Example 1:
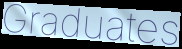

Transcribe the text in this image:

Graduates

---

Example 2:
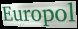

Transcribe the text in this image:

Europol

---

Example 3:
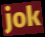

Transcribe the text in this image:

jok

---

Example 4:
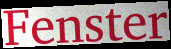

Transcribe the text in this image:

Fenster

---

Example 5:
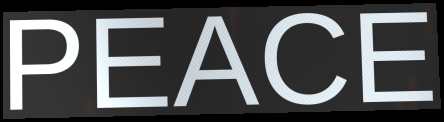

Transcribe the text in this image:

PEACE